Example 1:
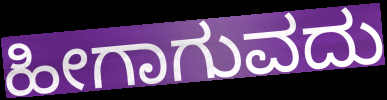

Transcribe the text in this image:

ಹೀಗಾಗುವದು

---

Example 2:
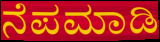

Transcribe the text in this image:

ನೆಪಮಾಡಿ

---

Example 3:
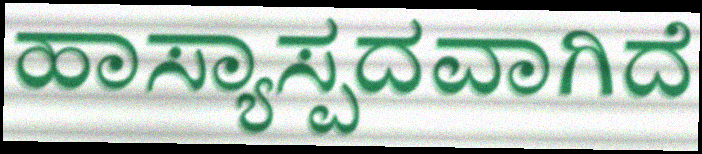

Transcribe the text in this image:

ಹಾಸ್ಯಾಸ್ಪದವಾಗಿದೆ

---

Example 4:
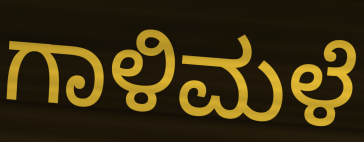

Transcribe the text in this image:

ಗಾಳಿಮಳೆ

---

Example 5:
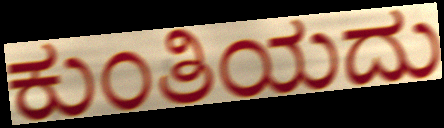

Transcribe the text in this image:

ಕುಂತಿಯದು